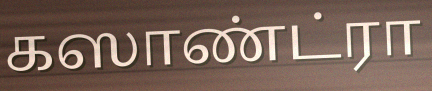
கஸாண்ட்ரா